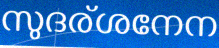
സുദര്ശനേന